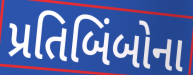
પ્રતિબિંબોના